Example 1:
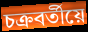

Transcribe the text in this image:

চক্ৰবৰ্তীয়ে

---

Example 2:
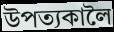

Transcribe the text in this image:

উপত্যকালৈ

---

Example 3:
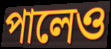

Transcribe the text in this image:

পালেও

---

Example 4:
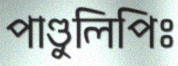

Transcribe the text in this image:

পাণ্ডুলিপিঃ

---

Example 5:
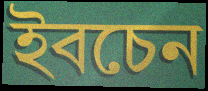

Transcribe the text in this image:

ইবচেন